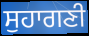
ਸੁਹਾਗਣੀ